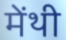
मेंथी